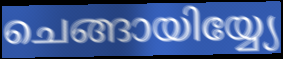
ചെങ്ങായിയ്യ്യേ